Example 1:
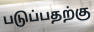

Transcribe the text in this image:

படுப்பதற்கு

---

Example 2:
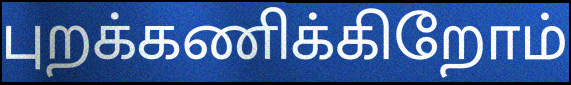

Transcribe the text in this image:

புறக்கணிக்கிறோம்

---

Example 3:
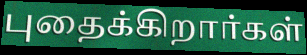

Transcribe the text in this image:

புதைக்கிறார்கள்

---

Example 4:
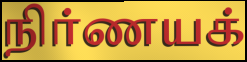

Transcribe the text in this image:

நிர்ணயக்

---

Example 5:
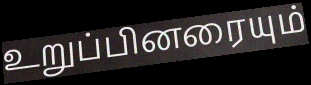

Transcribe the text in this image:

உறுப்பினரையும்